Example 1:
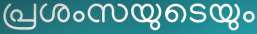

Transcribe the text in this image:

പ്രശംസയുടെയും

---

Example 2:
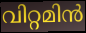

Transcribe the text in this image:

വിറ്റമിൻ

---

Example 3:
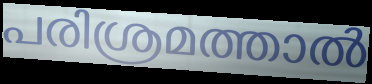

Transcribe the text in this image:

പരിശ്രമത്താൽ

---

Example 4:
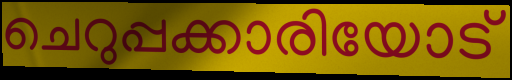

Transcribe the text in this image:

ചെറുപ്പക്കാരിയോട്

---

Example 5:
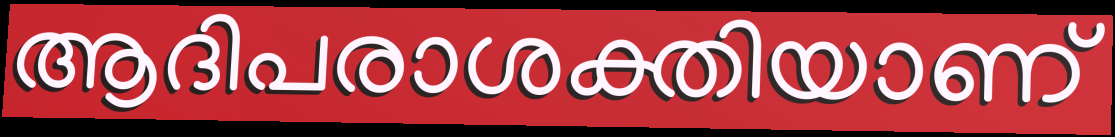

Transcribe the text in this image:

ആദിപരാശക്തിയാണ്